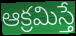
ఆక్రమిస్తే